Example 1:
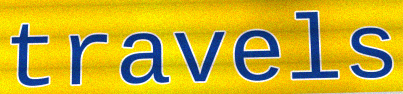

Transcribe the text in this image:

travels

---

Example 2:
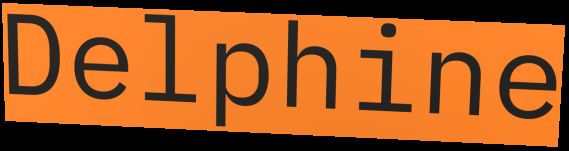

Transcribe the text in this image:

Delphine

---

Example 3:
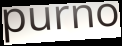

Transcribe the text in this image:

purno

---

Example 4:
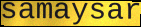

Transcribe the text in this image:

samaysar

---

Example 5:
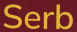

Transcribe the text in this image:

Serb